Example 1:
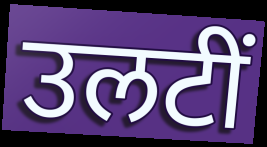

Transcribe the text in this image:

उलटीं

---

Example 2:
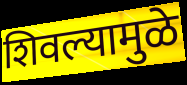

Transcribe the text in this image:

शिवल्यामुळे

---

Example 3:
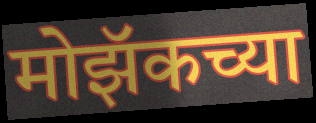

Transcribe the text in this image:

मोझॅकच्या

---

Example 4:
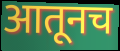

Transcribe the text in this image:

आतूनच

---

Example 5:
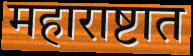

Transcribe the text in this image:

महाराष्टात